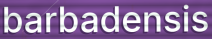
barbadensis